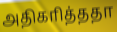
அதிகரித்ததா